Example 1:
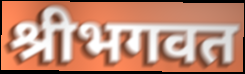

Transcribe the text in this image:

श्रीभगवत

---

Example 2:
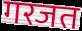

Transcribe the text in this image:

गरजत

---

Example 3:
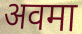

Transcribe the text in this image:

अवमा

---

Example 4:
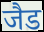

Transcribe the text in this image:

जैड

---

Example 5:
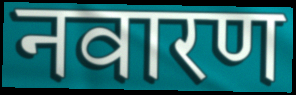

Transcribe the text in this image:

नवारण